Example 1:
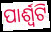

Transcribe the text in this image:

ପାର୍ଶ୍ଵଟି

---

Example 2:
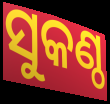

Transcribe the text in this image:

ସୁକଣ୍ଠ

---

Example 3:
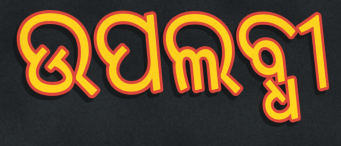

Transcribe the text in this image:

ଉପଲବ୍ଧୀ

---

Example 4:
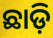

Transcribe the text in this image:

ଛାଡ଼ି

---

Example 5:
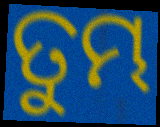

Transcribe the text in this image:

ତୁମ୍ଭ